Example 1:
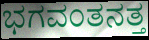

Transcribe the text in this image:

ಭಗವಂತನತ್ತ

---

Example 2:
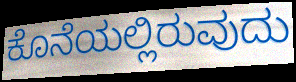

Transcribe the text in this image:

ಕೊನೆಯಲ್ಲಿರುವುದು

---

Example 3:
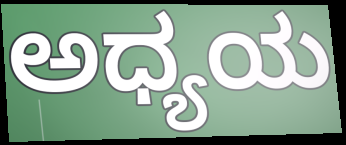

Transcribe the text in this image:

ಅಧ್ಯಯ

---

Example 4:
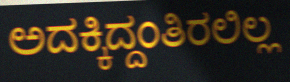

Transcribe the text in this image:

ಅದಕ್ಕಿದ್ದಂತಿರಲಿಲ್ಲ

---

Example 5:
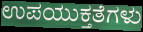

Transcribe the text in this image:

ಉಪಯುಕ್ತತೆಗಳು